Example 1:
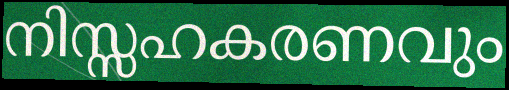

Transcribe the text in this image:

നിസ്സഹകരണവും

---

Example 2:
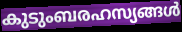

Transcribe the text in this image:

കുടുംബരഹസ്യങ്ങൾ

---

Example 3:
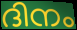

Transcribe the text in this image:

ദിനം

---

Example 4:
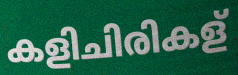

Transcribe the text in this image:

കളിചിരികള്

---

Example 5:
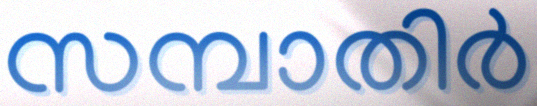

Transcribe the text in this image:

സമ്പാതിർ